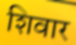
शिवार